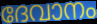
ദേവാനം